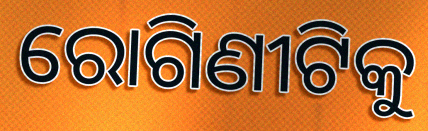
ରୋଗିଣୀଟିକୁ